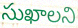
సుఖాలని